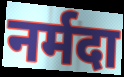
नर्मदा